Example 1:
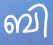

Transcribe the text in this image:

ബി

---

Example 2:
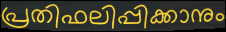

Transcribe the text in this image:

പ്രതിഫലിപ്പിക്കാനും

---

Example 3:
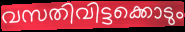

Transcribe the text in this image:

വസതിവിട്ടക്കൊടും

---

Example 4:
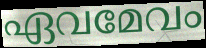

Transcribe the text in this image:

ഏവമേവം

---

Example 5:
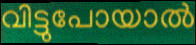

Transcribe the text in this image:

വിട്ടുപോയാൽ